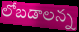
లోబడాలన్న